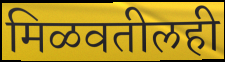
मिळवतीलही